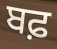
ਬਫ਼